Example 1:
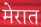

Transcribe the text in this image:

मेरात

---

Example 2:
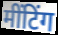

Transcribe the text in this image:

मींटिंग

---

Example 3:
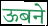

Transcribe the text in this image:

ऊबने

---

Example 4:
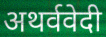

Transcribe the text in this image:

अथर्ववेदी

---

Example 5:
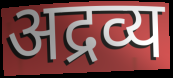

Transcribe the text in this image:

अद्रव्य